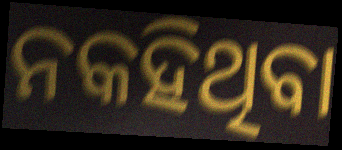
ନକହିଥିବା